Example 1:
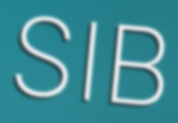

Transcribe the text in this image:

SIB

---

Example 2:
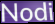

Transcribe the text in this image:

Nodi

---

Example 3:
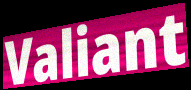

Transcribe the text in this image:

Valiant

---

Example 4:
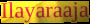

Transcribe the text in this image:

Ilayaraaja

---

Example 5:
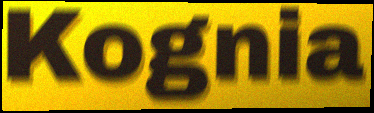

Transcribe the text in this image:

Kognia